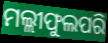
ମଲ୍ଲୀଫୁଲପରି